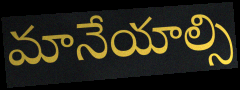
మానేయాల్సి